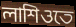
লাশিওতে